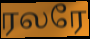
ரலரே